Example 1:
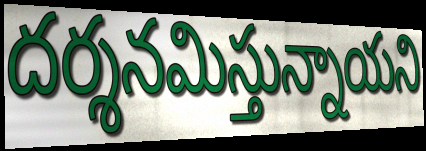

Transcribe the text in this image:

దర్శనమిస్తున్నాయని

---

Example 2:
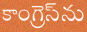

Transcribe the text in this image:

కాంగ్రెస్‌ను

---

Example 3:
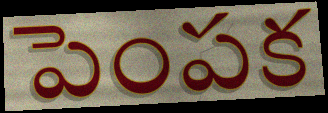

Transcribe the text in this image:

పెంపక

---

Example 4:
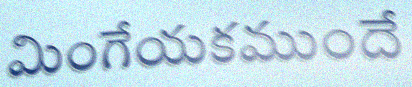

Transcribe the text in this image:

మింగేయకముందే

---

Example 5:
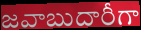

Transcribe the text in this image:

జవాబుదారీగా